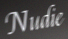
Nudie